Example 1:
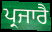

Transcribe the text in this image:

ਪ੍ਰਜਾਰੈ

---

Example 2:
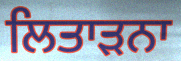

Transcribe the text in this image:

ਲਿਤਾੜਨਾ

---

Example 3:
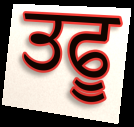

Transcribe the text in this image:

ਤਫੂ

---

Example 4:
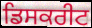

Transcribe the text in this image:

ਡਿਸਕਰੀਟ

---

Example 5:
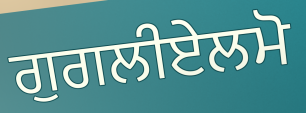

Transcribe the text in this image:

ਗੁਗਲੀਏਲਮੋ